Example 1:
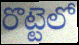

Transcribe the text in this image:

రొట్టెలో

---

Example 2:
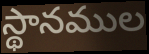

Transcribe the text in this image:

స్థానముల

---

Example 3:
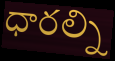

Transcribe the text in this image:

ధారల్ని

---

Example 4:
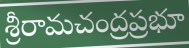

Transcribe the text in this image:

శ్రీరామచంద్రప్రభూ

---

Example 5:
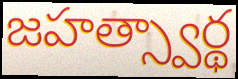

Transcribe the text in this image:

జహత్స్వార్థ